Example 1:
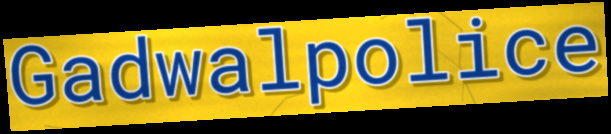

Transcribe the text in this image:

Gadwalpolice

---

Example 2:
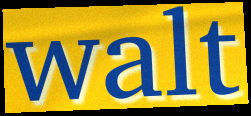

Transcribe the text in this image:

walt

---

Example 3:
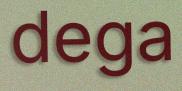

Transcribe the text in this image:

dega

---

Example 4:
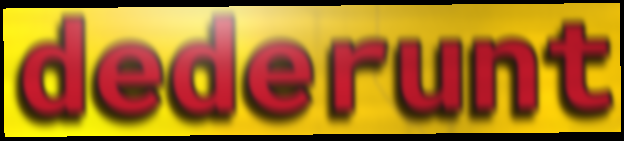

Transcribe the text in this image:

dederunt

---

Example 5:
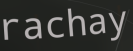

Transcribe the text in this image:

rachay